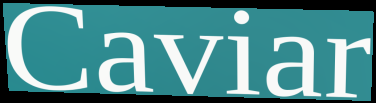
Caviar